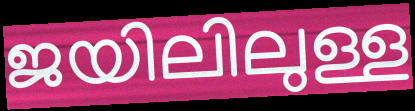
ജയിലിലുള്ള